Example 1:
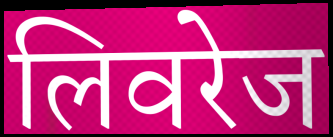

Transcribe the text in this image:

लिवरेज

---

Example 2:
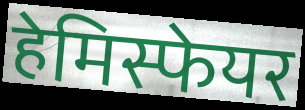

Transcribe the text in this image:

हेमिस्फेयर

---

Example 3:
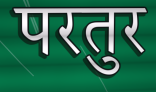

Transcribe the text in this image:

परतुर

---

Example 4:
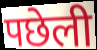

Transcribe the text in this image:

पछेली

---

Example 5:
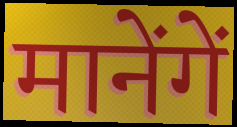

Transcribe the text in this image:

मानेंगें